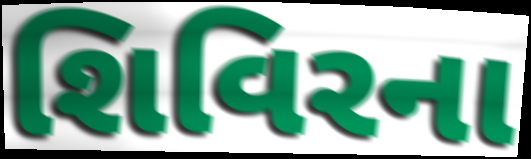
શિવિરના